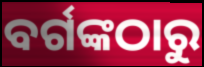
ବର୍ଗଙ୍କଠାରୁ